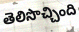
తెలిసొచ్చింది